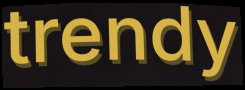
trendy